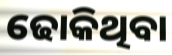
ଢୋକିଥିବା